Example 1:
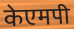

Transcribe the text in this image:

केएमपी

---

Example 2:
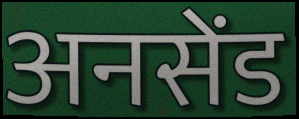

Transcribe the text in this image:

अनसेंड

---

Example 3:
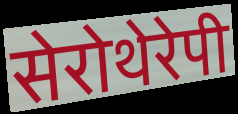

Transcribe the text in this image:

सेरोथेरेपी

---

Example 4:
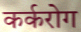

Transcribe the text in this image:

कर्करोग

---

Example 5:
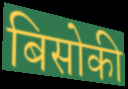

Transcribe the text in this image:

बिसोकी